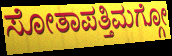
ಸೋತಾಪತ್ತಿಮಗ್ಗೋ